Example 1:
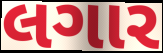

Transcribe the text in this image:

લગાર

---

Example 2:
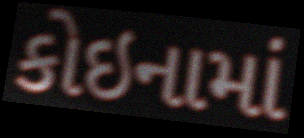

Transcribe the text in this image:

કોઇનામાં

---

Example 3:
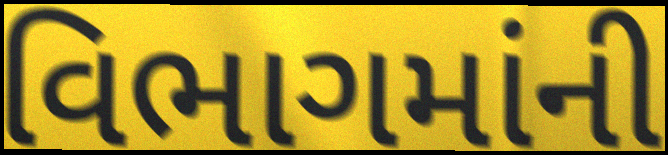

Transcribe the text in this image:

વિભાગમાંની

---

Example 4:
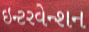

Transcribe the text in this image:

ઇન્ટરવેન્શન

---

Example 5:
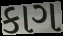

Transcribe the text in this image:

કાગ